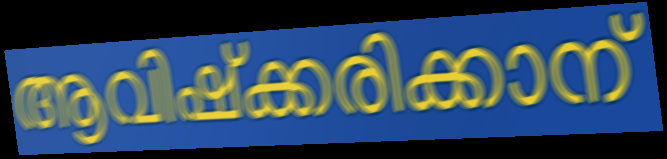
ആവിഷ്ക്കരിക്കാന്